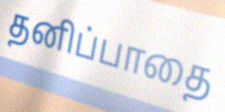
தனிப்பாதை